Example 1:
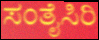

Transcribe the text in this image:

ಸಂತೈಸಿರಿ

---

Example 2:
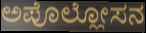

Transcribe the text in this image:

ಅಪೊಲ್ಲೋಸನ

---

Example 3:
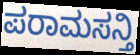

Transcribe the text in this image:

ಪರಾಮಸನ್ತಿ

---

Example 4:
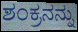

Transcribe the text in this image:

ಶಂಕ್ರನನ್ನು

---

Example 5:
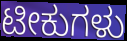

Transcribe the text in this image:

ಟೀಕುಗಳು